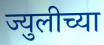
ज्युलीच्या